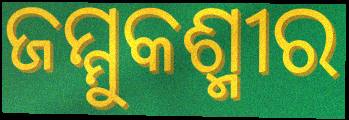
ଜମ୍ମୁକଶ୍ମୀର